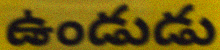
ఉండుడు